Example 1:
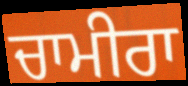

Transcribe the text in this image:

ਚਾਮੀਰਾ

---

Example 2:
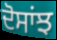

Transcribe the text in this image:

ਦੋਸਾਂਝ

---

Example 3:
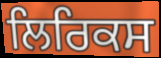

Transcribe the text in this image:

ਲਿਰਿਕਸ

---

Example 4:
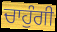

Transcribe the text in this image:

ਚਾਹੁੰਗੀ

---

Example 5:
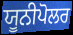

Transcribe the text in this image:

ਯੂਨੀਪੋਲਰ